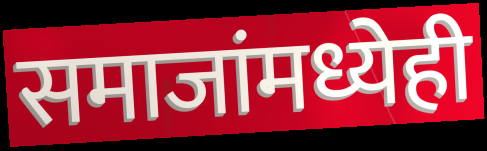
समाजांमध्येही